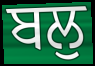
ਬਲੁ